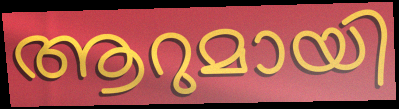
ആറുമായി